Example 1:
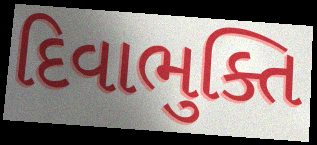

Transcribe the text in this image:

દિવાભુક્તિ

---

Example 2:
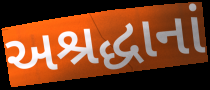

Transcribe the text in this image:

અશ્રદ્ધાનાં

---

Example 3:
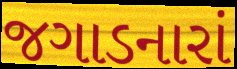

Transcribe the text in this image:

જગાડનારાં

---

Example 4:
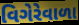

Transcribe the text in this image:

વિગેરેવાળા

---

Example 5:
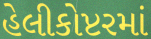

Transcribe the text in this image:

હેલીકોપ્ટરમાં